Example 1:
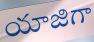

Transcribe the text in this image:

యాజిగా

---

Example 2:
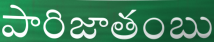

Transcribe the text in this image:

పారిజాతంబు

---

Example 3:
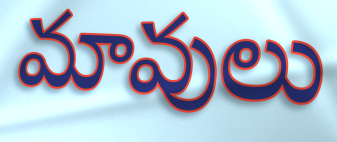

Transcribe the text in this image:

మావులు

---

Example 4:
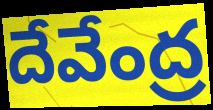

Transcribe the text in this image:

దేవేంద్ర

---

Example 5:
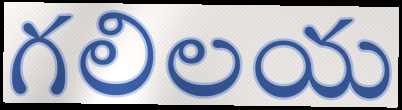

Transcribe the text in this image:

గలిలయ